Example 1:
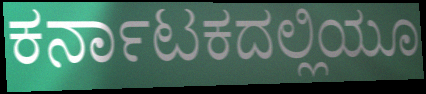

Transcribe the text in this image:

ಕರ್ನಾಟಕದಲ್ಲಿಯೂ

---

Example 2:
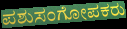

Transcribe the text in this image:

ಪಶುಸಂಗೋಪಕರು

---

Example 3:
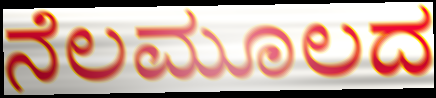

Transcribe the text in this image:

ನೆಲಮೂಲದ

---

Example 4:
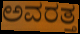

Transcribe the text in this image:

ಅವರತ್ತ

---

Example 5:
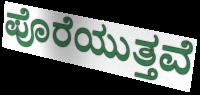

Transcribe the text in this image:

ಪೊರೆಯುತ್ತವೆ